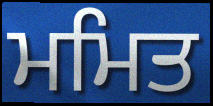
ਮਮਿਤ